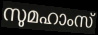
സുമഹാംസ്